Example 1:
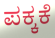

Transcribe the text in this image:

ಪಕ್ಕಕೆ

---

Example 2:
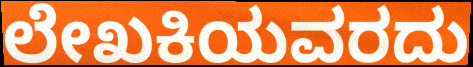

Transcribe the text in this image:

ಲೇಖಕಿಯವರದು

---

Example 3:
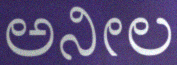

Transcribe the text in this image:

ಅನೀಲ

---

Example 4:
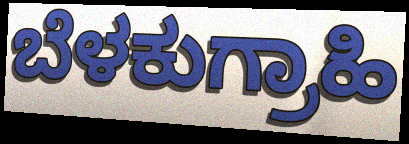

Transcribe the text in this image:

ಬೆಳಕುಗ್ರಾಹಿ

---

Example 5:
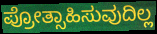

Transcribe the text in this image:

ಪ್ರೋತ್ಸಾಹಿಸುವುದಿಲ್ಲ